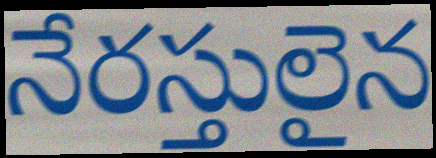
నేరస్తులైన